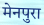
मेनपुरा